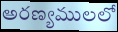
అరణ్యములలో